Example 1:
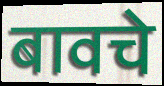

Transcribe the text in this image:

बावचे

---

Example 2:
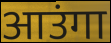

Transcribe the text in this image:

आउंगा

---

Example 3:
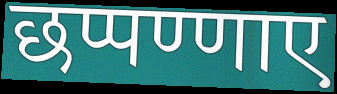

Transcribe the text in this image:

छप्पण्णाए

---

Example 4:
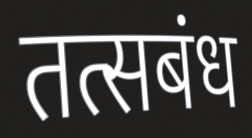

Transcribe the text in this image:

तत्सबंध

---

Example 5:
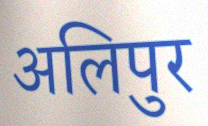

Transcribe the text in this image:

अलिपुर